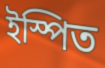
ইস্পিত